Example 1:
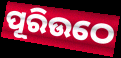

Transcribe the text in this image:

ପୂରିଉଠେ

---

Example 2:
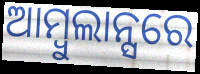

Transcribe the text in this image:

ଆମ୍ବୁଲାନ୍ସରେ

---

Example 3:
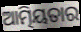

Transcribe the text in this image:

ଆତ୍ମିୟତାର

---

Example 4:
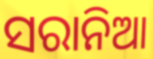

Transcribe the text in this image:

ସରାନିଆ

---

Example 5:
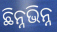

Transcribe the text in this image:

ଛିନ୍ନଭିନ୍ନ